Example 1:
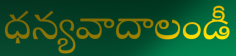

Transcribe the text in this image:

ధన్యవాదాలండీ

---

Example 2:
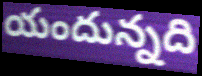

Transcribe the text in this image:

యందున్నది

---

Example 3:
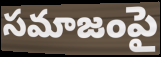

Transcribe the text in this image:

సమాజంపై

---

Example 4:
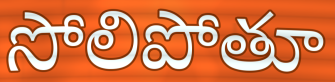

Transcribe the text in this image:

సోలిపోతూ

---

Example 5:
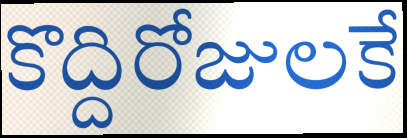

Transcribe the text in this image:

కొద్దిరోజులకే